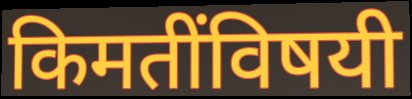
किमतींविषयी